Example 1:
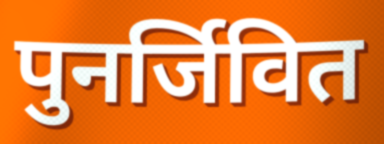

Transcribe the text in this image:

पुनर्जिवित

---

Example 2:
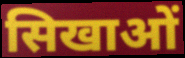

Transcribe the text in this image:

सिखाओं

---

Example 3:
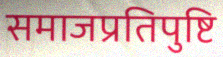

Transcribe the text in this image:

समाजप्रतिपुष्टि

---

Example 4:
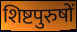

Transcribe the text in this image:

शिष्टपुरुषों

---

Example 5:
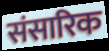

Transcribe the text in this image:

संसारिक